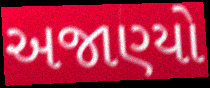
અજાણ્યો